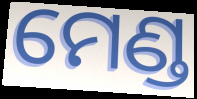
ମେଣ୍ଡ